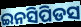
ଇନସିପିଡସ